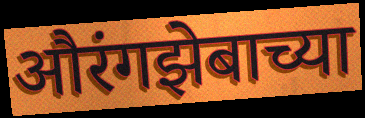
औरंगझेबाच्या